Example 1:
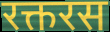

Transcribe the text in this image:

रक्तरस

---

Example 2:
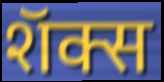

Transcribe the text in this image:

शॅक्स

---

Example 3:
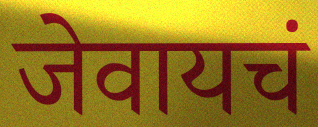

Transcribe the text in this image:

जेवायचं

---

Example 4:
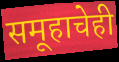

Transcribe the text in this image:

समूहाचेही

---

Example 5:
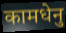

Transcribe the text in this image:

कामधेनु